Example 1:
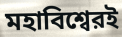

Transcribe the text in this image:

মহাবিশ্বেরই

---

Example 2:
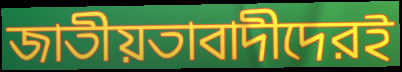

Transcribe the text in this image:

জাতীয়তাবাদীদেরই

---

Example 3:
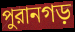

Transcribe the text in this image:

পুরানগড়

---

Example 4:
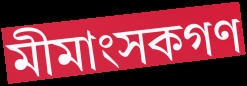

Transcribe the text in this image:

মীমাংসকগণ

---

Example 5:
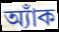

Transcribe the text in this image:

অ্যাঁক